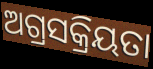
ଅଗ୍ରସକ୍ରିୟତା